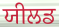
ਯੀਲਡ